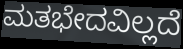
ಮತಭೇದವಿಲ್ಲದೆ